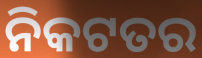
ନିକଟତର